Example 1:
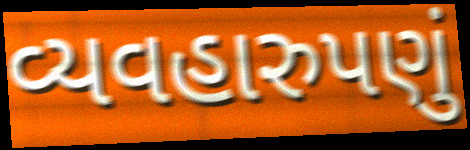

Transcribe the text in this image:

વ્યવહારુપણું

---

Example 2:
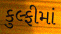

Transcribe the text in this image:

કુલ્ફીમાં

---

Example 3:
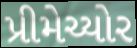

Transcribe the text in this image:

પ્રીમેચ્યોર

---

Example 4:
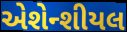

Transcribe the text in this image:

એશેન્શીયલ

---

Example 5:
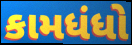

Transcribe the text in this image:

કામધંધો